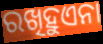
ରଖିହୁଏନା